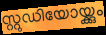
സ്റ്റുഡിയോയ്ക്കും